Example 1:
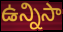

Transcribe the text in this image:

ఉన్నిసా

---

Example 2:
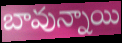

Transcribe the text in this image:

బావున్నాయి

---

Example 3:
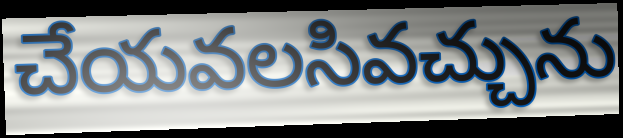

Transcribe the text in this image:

చేయవలసివచ్చును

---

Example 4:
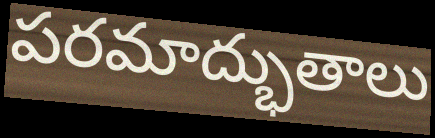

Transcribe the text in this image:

పరమాద్భుతాలు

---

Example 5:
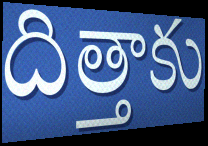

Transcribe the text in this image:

దిత్తాకు